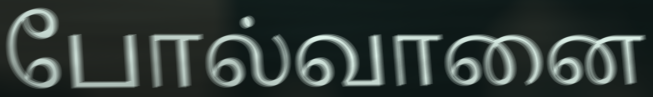
போல்வானை